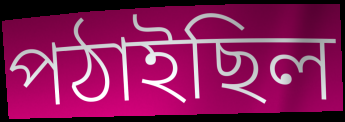
পঠাইছিল